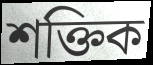
শক্তিক